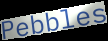
Pebbles